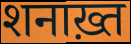
शनाख़्त